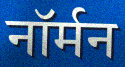
नॉर्मन